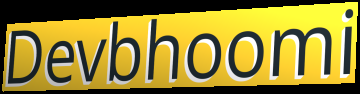
Devbhoomi